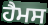
ਹੈਮਸ